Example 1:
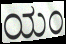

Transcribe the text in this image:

ಯಂ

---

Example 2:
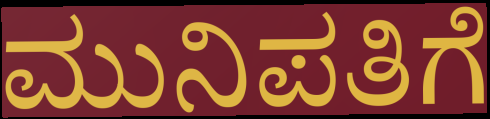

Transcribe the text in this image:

ಮುನಿಪತಿಗೆ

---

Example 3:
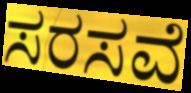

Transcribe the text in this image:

ಸರಸವೆ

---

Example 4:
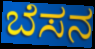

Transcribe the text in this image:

ಬೆಸನ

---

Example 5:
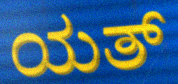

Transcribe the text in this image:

ಯತ್